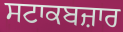
ਸਟਾਕਬਜ਼ਾਰ